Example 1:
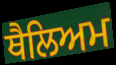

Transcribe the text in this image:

ਥੈਲਿਅਮ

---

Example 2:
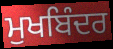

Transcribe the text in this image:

ਮੁਖਬਿੰਦਰ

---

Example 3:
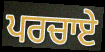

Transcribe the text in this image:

ਪਰਚਾਏ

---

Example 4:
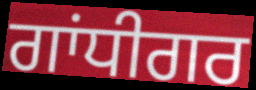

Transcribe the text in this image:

ਗਾਂਧੀਗਰ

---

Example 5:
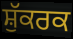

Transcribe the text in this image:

ਸ਼ੁੱਕਰਕ